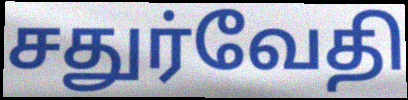
சதுர்வேதி